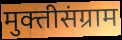
मुक्तीसंग्राम